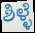
ಶಿಳ್ಳೆ